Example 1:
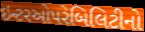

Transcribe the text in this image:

ઇન્ટરઓપરેબિલિટીનો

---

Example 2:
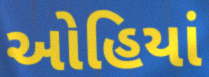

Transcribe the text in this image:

ઓહિયાં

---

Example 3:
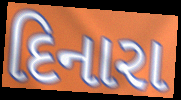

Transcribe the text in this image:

દિનારા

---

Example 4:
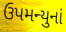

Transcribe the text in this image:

ઉપમન્યુનાં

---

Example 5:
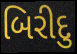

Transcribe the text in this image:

બિરીદુ